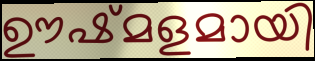
ഊഷ്മളമായി